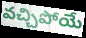
వచ్చిపోయే